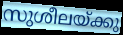
സുശീലയ്ക്കു